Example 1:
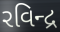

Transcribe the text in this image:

રવિન્દ્ર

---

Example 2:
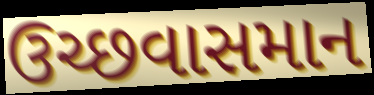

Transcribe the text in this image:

ઉચ્છવાસમાન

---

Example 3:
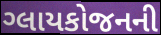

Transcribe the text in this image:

ગ્લાયકોજનની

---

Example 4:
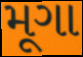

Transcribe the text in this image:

મૂગા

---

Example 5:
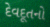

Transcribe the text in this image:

દેવદૂતનો